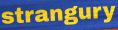
strangury